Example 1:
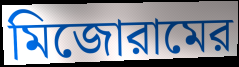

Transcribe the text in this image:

মিজোরামের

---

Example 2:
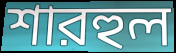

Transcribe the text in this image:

শারহুল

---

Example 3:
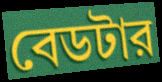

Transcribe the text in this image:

বেডটার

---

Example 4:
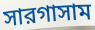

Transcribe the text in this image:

সারগাসাম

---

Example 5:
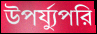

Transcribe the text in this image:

উপর্য্যুপরি